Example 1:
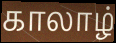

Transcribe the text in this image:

காலாழ்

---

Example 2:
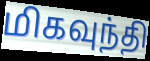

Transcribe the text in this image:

மிகவுந்தி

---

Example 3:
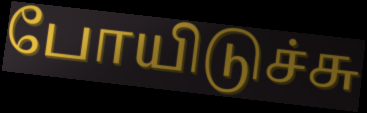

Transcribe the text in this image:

போயிடுச்சு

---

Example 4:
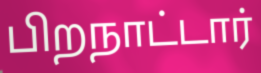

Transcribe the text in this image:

பிறநாட்டார்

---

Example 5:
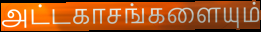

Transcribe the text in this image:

அட்டகாசங்களையும்